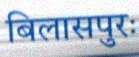
बिलासपुरः